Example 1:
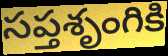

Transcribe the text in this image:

సప్తశృంగికి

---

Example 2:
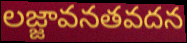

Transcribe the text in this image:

లజ్జావనతవదన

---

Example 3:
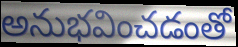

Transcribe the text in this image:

అనుభవించడంతో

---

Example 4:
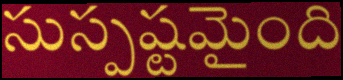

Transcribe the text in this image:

సుస్పష్టమైంది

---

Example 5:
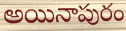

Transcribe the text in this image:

అయినాపురం